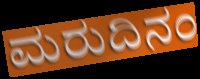
ಮರುದಿನಂ